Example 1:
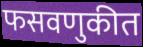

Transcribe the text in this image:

फसवणुकीत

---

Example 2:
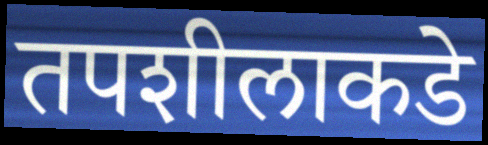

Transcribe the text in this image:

तपशीलाकडे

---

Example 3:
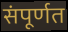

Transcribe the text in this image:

संपूर्णत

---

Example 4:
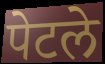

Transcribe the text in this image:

पेटले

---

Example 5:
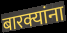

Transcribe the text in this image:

बारक्यांना